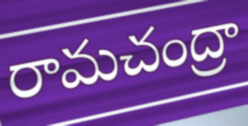
రామచంద్రా